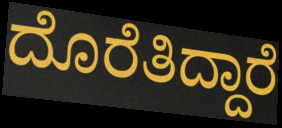
ದೊರೆತಿದ್ದಾರೆ